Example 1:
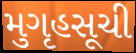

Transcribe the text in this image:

મુગૃહસૂચી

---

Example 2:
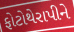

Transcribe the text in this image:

ફોટોથેરાપીને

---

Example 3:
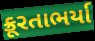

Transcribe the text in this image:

ક્રૂરતાભર્યા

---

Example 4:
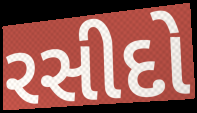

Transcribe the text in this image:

રસીદો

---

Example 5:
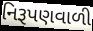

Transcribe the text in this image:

નિરૂપણવાળી